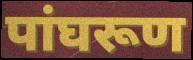
पांघरूण